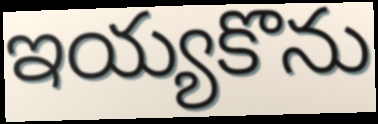
ఇయ్యకొను